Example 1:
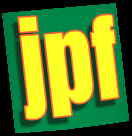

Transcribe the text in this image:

jpf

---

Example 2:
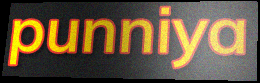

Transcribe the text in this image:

punniya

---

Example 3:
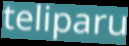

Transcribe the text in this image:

teliparu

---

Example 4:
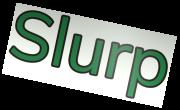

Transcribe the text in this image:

Slurp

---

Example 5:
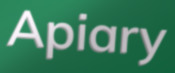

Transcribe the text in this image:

Apiary